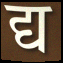
द्य